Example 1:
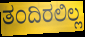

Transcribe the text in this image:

ತಂದಿರಲಿಲ್ಲ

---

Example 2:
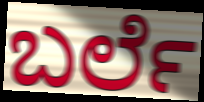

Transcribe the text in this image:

ಬರ್ಲೆ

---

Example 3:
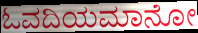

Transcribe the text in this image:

ಓವದಿಯಮಾನೋ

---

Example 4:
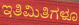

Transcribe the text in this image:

ಇತಿಮಿತಿಗಳೂ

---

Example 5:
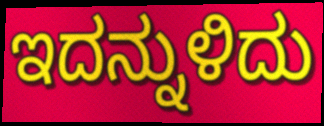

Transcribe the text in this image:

ಇದನ್ನುಳಿದು